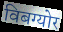
विबग्योर